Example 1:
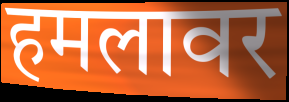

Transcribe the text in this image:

हमलावर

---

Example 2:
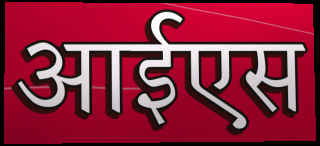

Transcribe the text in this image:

आईएस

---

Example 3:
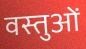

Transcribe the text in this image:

वस्तुओं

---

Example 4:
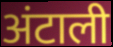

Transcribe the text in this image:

अंटाली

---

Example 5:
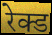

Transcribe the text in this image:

रेक्ड